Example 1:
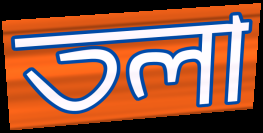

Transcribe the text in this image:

তলা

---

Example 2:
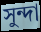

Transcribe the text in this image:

সুন্দা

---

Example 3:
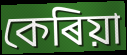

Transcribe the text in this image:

কেৰিয়া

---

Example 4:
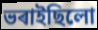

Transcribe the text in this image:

ভৰাইছিলো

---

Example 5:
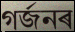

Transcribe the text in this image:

গৰ্জনৰ